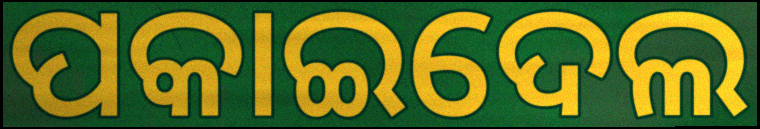
ପକାଇଦେଲ